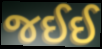
જઈઈ